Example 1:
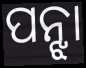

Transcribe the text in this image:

ପନ୍ଝା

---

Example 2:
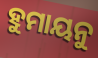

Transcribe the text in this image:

ହୁମାୟନୁ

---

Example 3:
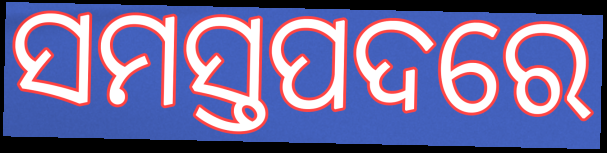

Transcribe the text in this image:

ସମସ୍ତପଦରେ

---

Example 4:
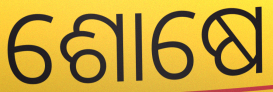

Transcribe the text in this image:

ଶୋଷେ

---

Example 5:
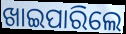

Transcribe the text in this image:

ଖାଇପାରିଲେ